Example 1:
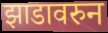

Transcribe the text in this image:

झाडावरुन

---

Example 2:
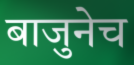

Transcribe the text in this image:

बाजुनेच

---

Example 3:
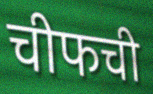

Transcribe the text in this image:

चीफची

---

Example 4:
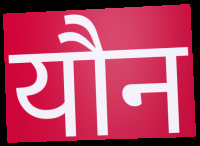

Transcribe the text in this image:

यौन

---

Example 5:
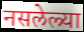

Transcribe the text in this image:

नसलेल्या